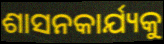
ଶାସନକାର୍ଯ୍ୟକୁ